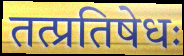
तत्प्रतिषेधः